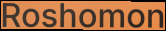
Roshomon